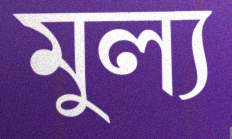
মুল্য